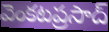
వెంకటప్రసాద్